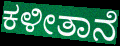
ಕಳೀತಾನೆ